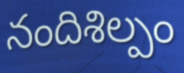
నందిశిల్పం